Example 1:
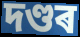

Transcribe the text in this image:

দণ্ডৰ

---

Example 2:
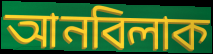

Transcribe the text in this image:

আনবিলাক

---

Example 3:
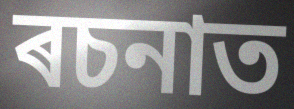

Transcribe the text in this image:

ৰচনাত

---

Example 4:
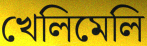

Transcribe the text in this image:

খেলিমেলি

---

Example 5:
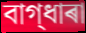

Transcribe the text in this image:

বাগ্‌ধাৰা